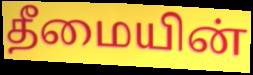
தீமையின்